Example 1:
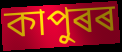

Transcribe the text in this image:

কাপুৰৰ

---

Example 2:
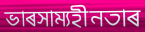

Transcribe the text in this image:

ভাৰসাম্যহীনতাৰ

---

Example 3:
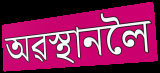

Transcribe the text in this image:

অৱস্থানলৈ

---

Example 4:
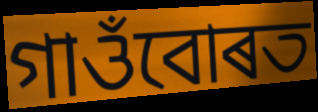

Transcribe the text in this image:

গাওঁবোৰত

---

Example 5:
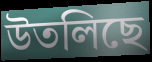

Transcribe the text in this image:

উতলিছে